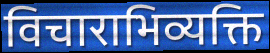
विचाराभिव्यक्ति